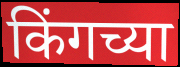
किंगच्या